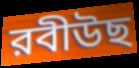
রবীউছ